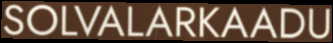
SOLVALARKAADU